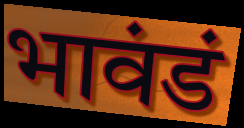
भावंडं